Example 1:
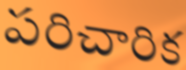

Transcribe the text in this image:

పరిచారిక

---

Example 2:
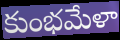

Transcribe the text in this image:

కుంభమేళా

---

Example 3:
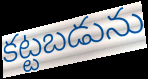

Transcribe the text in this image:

కట్టబడును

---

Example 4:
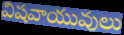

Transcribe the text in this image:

విషవాయువులు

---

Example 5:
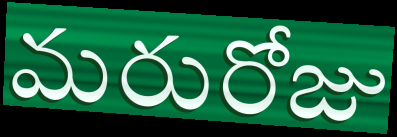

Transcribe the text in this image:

మరురోజు